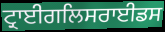
ਟ੍ਰਾਈਗਲਿਸਰਾਈਡਸ